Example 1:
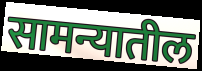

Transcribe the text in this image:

सामन्यातील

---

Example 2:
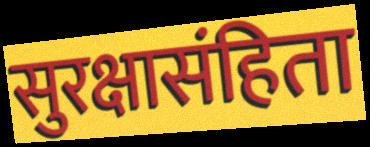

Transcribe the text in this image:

सुरक्षासंहिता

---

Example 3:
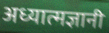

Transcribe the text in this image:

अध्यात्मज्ञानी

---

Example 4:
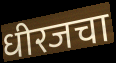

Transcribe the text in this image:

धीरजचा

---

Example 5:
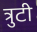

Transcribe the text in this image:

त्रुटी